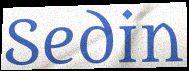
Sedin